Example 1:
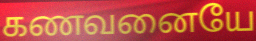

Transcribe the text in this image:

கணவனையே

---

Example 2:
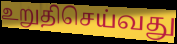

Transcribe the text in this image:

உறுதிசெய்வது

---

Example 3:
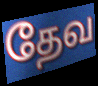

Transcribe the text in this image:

தேவ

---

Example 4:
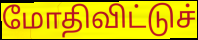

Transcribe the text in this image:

மோதிவிட்டுச்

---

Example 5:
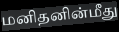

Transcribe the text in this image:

மனிதனின்மீது